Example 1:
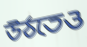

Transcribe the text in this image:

উঠতেও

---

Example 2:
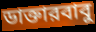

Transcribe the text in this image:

ডাক্তারবাবু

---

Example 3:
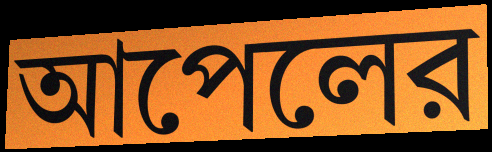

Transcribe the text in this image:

আপেলের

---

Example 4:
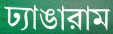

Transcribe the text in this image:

ঢ্যাঙারাম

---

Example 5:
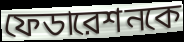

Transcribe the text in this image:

ফেডারেশনকে